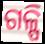
ଗଳ୍ପି